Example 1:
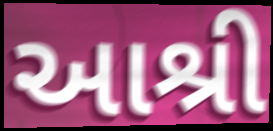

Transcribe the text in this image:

આશ્રી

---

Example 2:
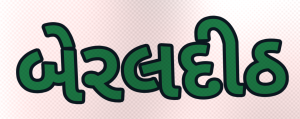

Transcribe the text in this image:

બેરલદીઠ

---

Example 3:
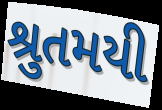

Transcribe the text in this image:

શ્રુતમયી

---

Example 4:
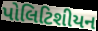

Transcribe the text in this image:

પોલિટિશીયન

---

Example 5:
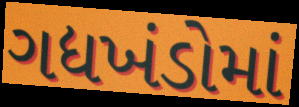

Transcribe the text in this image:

ગદ્યખંડોમાં